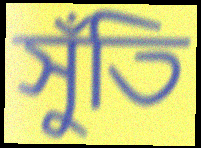
সুঁতি